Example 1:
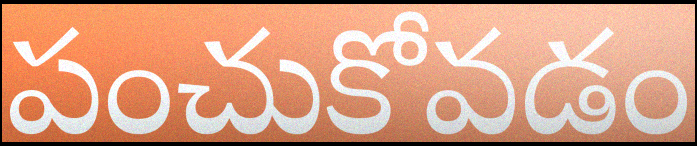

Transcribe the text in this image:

పంచుకోవడం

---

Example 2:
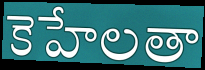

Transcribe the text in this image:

కెహేలతా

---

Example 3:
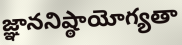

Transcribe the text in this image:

జ్ఞాననిష్ఠాయోగ్యతా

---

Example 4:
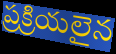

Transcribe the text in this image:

ప్రక్రియలైన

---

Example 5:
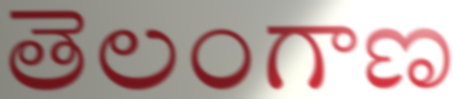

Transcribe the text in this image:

తెలంగాణ